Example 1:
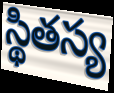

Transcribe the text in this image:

స్థితస్య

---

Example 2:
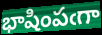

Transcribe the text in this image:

భాషింపఁగా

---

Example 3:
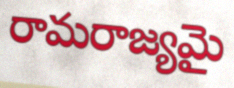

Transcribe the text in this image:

రామరాజ్యమై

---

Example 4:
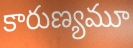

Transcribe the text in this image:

కారుణ్యమూ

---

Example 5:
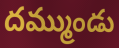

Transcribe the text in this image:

దమ్ముండు